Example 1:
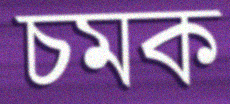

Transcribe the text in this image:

চমক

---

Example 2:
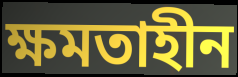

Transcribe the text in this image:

ক্ষমতাহীন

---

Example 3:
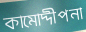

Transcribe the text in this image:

কামোদ্দীপনা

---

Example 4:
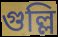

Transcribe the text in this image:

গুল্লি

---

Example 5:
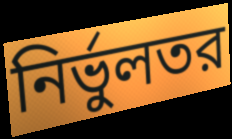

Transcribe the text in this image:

নির্ভুলতর